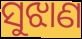
ସୁଝାଣ